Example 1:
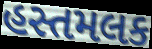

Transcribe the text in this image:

હસ્તમલક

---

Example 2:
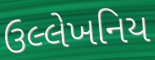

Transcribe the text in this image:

ઉલ્લેખનિય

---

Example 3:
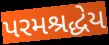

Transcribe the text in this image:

પરમશ્રદ્ધેય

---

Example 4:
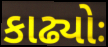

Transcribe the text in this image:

કાઢ્યોઃ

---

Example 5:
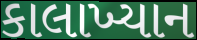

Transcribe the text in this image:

કાલાખ્યાન